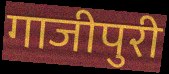
गाजीपुरी